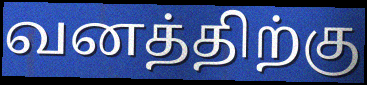
வனத்திற்கு